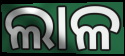
ଲାଳ